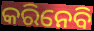
କରିନେବି